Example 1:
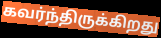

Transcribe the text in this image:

கவர்ந்திருக்கிறது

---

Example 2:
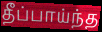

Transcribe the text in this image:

தீப்பாய்ந்த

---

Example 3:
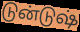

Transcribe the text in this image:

டுன்டுஷ்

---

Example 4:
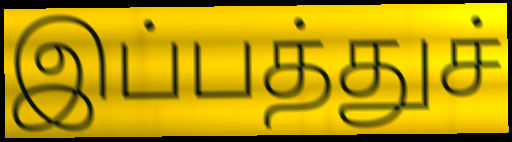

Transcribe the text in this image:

இப்பத்துச்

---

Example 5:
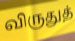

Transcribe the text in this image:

விருதுத்